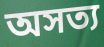
অসত্য